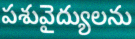
పశువైద్యులను